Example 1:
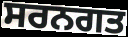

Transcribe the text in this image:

ਸਰਨਗਤ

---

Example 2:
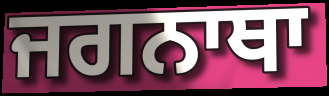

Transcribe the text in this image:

ਜਗਨਾਥਾ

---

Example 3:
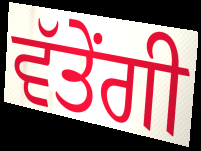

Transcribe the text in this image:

ਵੱਤੇਂਗੀ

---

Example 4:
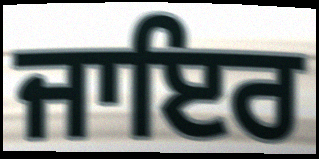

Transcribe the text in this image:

ਜਾਇਰ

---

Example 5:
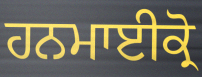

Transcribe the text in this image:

ਹਨਮਾਈਕ੍ਰੋ